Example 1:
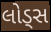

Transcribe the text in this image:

લોડ્સ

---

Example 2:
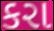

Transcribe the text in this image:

કરા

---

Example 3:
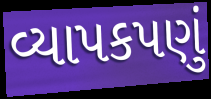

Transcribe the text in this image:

વ્યાપકપણું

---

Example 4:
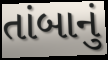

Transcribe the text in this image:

તાંબાનું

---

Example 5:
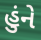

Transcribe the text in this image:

હુંને